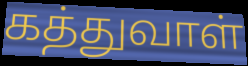
கத்துவாள்